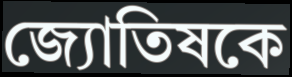
জ্যোতিষকে